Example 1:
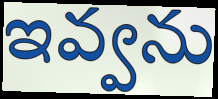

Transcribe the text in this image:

ఇవ్వను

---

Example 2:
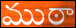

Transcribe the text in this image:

ముఠా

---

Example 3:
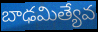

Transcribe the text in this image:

బాఢమిత్యేవ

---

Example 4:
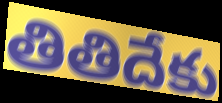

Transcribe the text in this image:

తితిదేకు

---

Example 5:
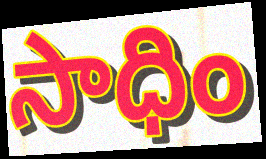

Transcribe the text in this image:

సాధిం